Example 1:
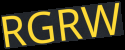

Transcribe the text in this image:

RGRW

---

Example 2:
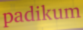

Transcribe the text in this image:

padikum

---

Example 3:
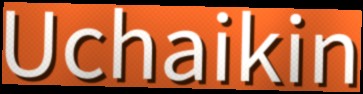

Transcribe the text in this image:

Uchaikin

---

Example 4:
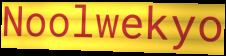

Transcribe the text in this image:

Noolwekyo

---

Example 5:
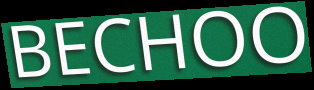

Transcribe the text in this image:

BECHOO